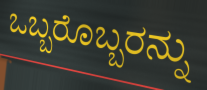
ಒಬ್ಬರೊಬ್ಬರನ್ನು